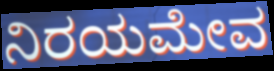
ನಿರಯಮೇವ